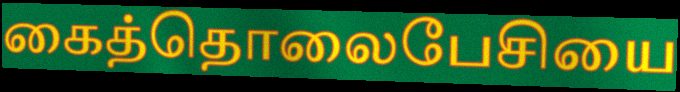
கைத்தொலைபேசியை